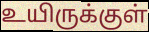
உயிருக்குள்